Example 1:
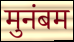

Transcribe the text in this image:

मुनंबम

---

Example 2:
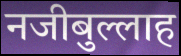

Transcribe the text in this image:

नजीबुल्लाह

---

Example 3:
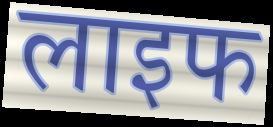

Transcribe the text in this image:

लाइफ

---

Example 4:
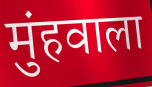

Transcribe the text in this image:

मुंहवाला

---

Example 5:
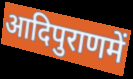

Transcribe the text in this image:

आदिपुराणमें